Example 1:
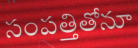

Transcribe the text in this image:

సంపత్తితోనూ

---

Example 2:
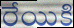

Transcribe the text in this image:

రేయికి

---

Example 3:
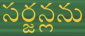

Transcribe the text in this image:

సర్జన్లను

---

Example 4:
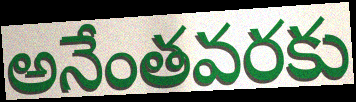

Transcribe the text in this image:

అనేంతవరకు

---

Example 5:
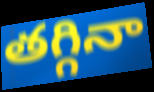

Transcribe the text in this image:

తగ్గినా